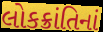
લોકક્રાંતિનાં